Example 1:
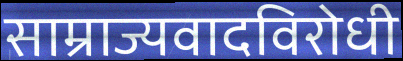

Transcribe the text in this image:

साम्राज्यवादविरोधी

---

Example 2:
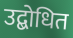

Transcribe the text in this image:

उद्बोधित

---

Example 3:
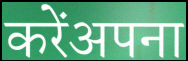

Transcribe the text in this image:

करेंअपना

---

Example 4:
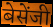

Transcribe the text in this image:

बेसेंजी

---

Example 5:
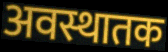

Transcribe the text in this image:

अवस्थातक